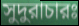
সুদুরাচারঃ